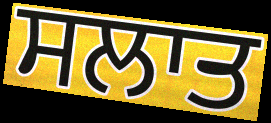
ਸਲਾਤ